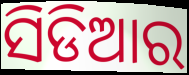
ସିଡିଆର